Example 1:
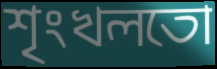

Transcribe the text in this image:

শৃংখলতো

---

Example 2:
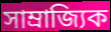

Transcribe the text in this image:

সাম্ৰাজ্যিক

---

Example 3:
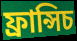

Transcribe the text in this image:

ফ্ৰান্সিচ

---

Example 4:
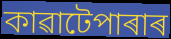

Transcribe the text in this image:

কাৱাটেপাৰাৰ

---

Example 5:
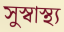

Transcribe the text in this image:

সুস্বাস্থ্য